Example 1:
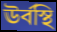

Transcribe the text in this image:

ঊর্বস্থি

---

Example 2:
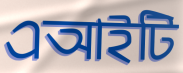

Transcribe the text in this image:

এআইটি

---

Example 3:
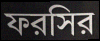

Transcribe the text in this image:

ফরসির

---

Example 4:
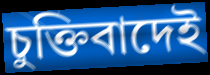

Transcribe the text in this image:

চুক্তিবাদেই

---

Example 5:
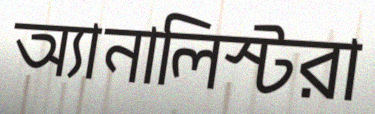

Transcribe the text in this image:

অ্যানালিস্টরা